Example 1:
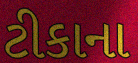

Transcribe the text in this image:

ટીકાના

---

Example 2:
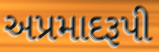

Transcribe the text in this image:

અપ્રમાદરૂપી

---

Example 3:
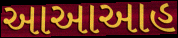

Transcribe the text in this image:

આઆઆહ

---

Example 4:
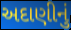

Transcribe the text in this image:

અદાણીનું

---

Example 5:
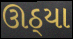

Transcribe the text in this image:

ઊઠ્યા